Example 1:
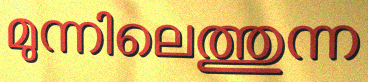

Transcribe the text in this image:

മുന്നിലെത്തുന്ന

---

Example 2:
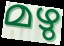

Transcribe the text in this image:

മഴു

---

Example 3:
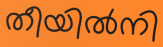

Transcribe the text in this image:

തീയിൽനി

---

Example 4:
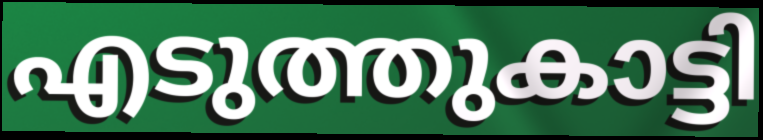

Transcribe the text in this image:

എടുത്തുകാട്ടി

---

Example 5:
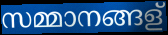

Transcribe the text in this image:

സമ്മാനങ്ങള്